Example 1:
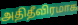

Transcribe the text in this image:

அதிதீவிரமாக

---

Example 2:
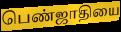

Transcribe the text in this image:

பெண்ஜாதியை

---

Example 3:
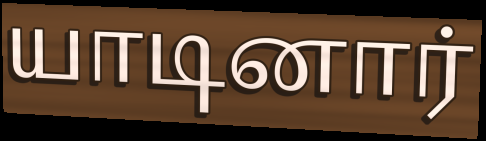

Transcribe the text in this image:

யாடினார்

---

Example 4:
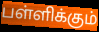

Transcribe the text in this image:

பள்ளிக்கும்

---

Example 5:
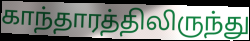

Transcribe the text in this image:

காந்தாரத்திலிருந்து